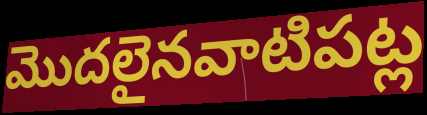
మొదలైనవాటిపట్ల